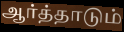
ஆர்த்தாடும்